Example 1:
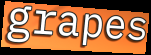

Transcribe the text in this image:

grapes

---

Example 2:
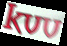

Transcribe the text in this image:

kuu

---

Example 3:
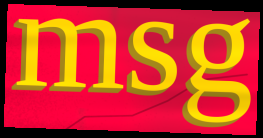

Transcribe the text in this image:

msg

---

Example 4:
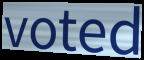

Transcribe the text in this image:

voted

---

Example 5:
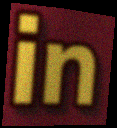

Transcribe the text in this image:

in